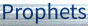
Prophets